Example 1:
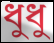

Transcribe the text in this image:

ধুধু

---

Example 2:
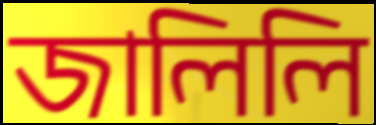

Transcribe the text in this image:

জালিলি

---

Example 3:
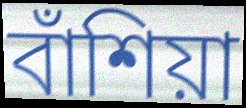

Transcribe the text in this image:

বাঁশিয়া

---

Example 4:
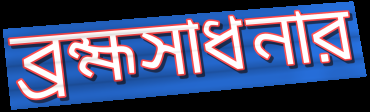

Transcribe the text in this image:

ব্রহ্মসাধনার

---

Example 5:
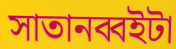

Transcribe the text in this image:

সাতানব্বইটা